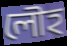
লৌহ